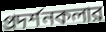
প্রদর্শনকলার